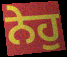
ਨੇਹੁ